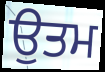
ਉਤਮ